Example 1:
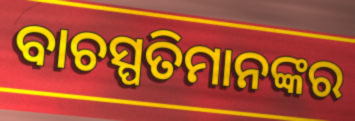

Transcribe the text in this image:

ବାଚସ୍ପତିମାନଙ୍କର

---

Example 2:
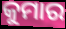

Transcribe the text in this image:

କୁମାର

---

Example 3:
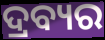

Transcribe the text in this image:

ଦ୍ରବ୍ୟର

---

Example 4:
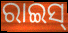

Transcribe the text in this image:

ରାଇସ୍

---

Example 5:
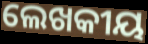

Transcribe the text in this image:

ଲେଖକୀୟ